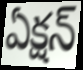
ఏక్షన్